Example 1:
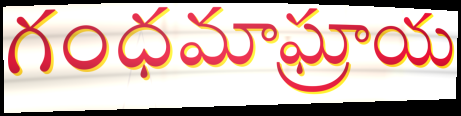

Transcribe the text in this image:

గంధమాఘ్రాయ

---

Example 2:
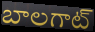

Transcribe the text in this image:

బాలగాట్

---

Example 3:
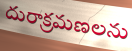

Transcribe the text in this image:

దురాక్రమణలను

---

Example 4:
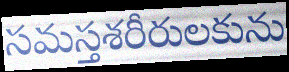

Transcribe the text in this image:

సమస్తశరీరులకును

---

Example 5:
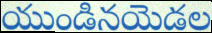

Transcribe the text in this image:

యుండినయెడల